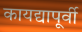
कायद्यापूर्वी